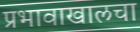
प्रभावाखालचा